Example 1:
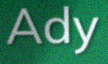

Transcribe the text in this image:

Ady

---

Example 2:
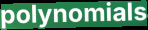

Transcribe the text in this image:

polynomials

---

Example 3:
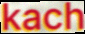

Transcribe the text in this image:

kach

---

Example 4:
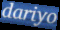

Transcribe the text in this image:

dariyo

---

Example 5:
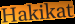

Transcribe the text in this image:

Hakikat